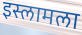
इस्लामला